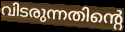
വിടരുന്നതിന്റെ